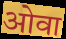
ओवा